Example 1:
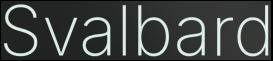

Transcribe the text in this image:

Svalbard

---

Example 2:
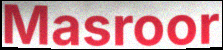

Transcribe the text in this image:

Masroor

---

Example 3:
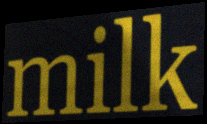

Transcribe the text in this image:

milk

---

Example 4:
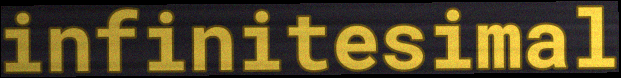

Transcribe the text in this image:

infinitesimal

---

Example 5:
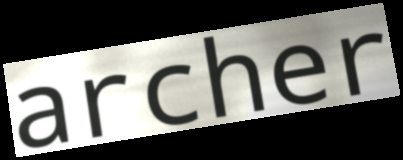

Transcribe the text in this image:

archer